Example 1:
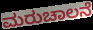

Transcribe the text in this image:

ಮರುಚಾಲನೆ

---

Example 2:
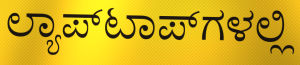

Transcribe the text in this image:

ಲ್ಯಾಪ್‌ಟಾಪ್‌ಗಳಲ್ಲಿ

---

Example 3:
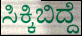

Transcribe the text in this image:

ಸಿಕ್ಕಿಬಿದ್ದೆ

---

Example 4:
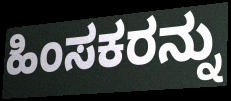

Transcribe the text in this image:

ಹಿಂಸಕರನ್ನು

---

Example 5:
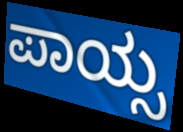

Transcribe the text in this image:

ಪಾಯ್ಸ